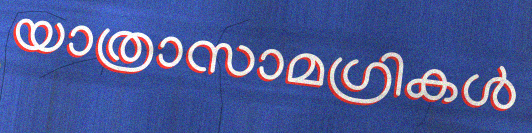
യാത്രാസാമഗ്രികൾ